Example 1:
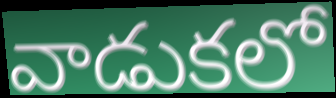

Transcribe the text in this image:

వాడుకలో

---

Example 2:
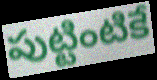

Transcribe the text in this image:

పుట్టింటికే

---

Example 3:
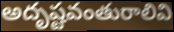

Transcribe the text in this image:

అదృష్టవంతురాలివి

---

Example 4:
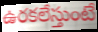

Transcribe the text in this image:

ఉరకలేస్తుంటే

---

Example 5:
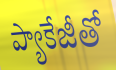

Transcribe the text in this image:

ప్యాకేజీతో